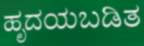
ಹೃದಯಬಡಿತ